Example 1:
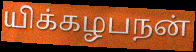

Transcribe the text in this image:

யிக்கழபநன்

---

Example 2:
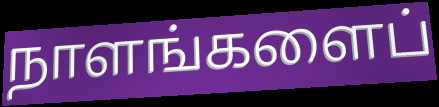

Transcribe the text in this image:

நாளங்களைப்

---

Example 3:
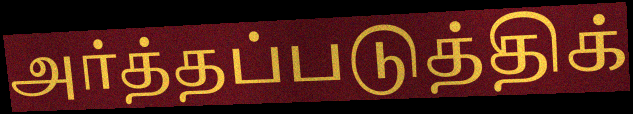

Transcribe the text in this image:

அர்த்தப்படுத்திக்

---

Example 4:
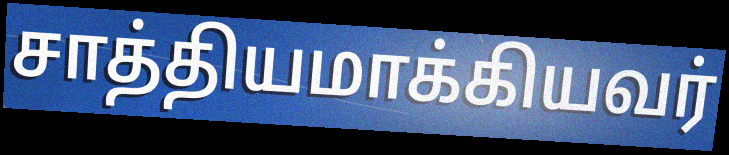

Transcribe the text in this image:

சாத்தியமாக்கியவர்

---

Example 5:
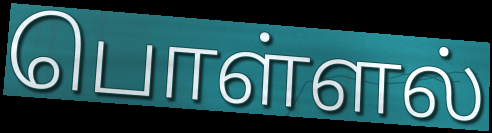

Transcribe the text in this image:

பொள்ளல்